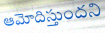
ఆమోదిస్తుందని